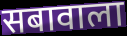
सबावाला